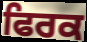
ਫਿਰਕ